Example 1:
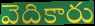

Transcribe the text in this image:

వెదికారు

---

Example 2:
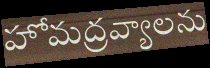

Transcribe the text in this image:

హోమద్రవ్యాలను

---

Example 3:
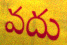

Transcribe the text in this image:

వదు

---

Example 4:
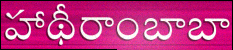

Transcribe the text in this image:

హాథీరాంబాబా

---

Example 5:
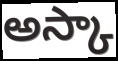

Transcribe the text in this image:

అస్కా